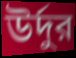
উর্দুর